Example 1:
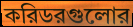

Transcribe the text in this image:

করিডরগুলোর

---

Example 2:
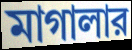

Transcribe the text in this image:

মাগালার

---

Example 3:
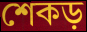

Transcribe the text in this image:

শেকড়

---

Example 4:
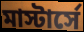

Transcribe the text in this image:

মাস্টার্সে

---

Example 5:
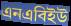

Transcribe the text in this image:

এনএবিইউ